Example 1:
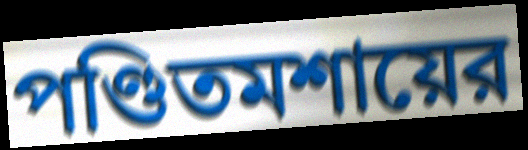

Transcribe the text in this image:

পণ্ডিতমশায়ের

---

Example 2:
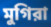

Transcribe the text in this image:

মুগিরা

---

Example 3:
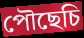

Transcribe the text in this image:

পৌছেচি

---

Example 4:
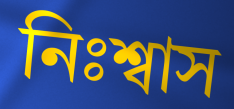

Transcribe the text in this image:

নিঃশ্বাস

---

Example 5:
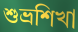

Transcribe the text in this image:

শুভ্রশিখা